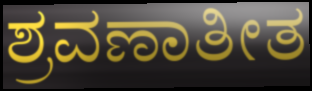
ಶ್ರವಣಾತೀತ